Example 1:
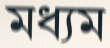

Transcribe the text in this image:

মধ্যম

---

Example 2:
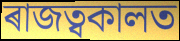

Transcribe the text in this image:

ৰাজত্বকালত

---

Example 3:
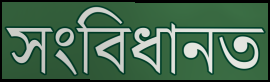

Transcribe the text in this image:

সংবিধানত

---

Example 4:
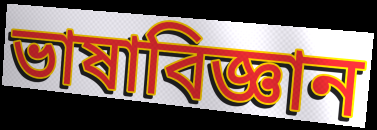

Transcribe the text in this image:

ভাষাবিজ্ঞান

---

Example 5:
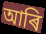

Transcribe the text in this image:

আৰি